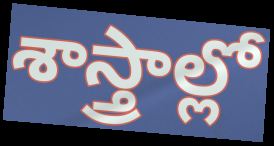
శాస్త్రాల్లో